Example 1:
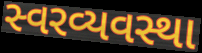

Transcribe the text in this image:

સ્વરવ્યવસ્થા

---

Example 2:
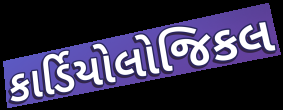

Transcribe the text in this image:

કાર્ડિયોલોજિકલ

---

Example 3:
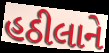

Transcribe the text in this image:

હઠીલાને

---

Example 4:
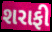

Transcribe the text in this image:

શરાફી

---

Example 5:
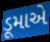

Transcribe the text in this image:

ડૂમાએ